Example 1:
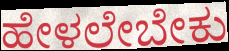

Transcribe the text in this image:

ಹೇಳಲೇಬೇಕು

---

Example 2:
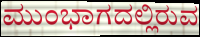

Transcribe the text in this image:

ಮುಂಭಾಗದಲ್ಲಿರುವ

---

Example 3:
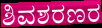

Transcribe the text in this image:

ಶಿವಶರಣರ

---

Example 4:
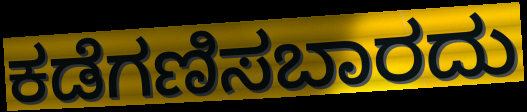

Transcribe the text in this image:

ಕಡೆಗಣಿಸಬಾರದು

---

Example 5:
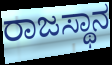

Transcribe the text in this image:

ರಾಜಸ್ಥಾನ